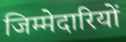
जिम्मेदारियों